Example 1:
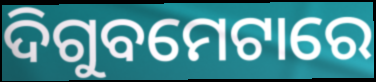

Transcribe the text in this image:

ଦିଗୁବମେଟାରେ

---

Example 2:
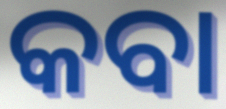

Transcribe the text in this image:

କବା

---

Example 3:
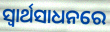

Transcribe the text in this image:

ସ୍ବାର୍ଥସାଧନରେ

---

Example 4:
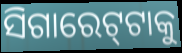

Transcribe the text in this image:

ସିଗାରେଟ୍‍ଟାକୁ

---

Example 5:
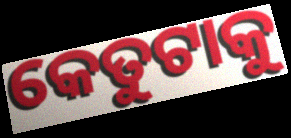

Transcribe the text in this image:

କେତୁଟାକୁ